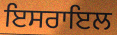
ਇਸਰਾਇਲ